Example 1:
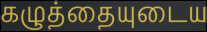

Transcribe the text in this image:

கழுத்தையுடைய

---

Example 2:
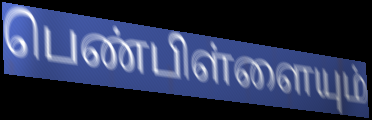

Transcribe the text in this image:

பெண்பிள்ளையும்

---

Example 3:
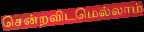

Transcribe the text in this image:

சென்றவிடமெல்லாம்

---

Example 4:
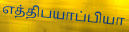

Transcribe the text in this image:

எத்திபயாப்பியா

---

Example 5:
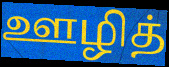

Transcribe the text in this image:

ஊழித்